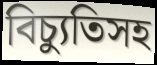
বিচ্যুতিসহ